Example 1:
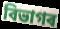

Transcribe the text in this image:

বিভাগৰ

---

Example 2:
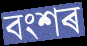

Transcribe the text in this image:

বংশৰ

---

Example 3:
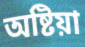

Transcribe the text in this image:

অষ্টিয়া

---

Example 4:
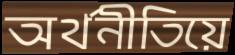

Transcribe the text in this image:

অৰ্থনীতিয়ে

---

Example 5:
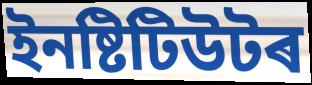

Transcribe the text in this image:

ইনষ্টিটিউটৰ